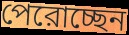
পেরোচ্ছেন